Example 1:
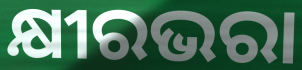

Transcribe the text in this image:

କ୍ଷୀରଭରା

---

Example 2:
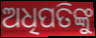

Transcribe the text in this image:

ଅଧିପତିଙ୍କୁ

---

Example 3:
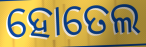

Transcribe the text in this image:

ହୋତେଲ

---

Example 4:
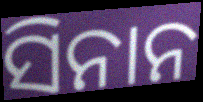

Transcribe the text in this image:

ସିନାନ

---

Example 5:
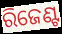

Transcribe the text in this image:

ରିଜେଣ୍ଟ